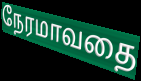
நேரமாவதை